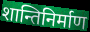
शान्तिनिर्माण